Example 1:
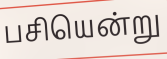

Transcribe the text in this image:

பசியென்று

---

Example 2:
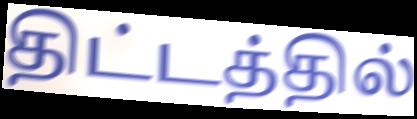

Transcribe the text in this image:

திட்டத்தில்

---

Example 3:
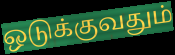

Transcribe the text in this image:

ஒடுக்குவதும்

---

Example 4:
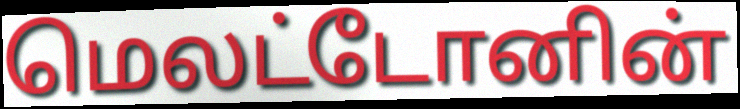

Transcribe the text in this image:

மெலட்டோனின்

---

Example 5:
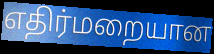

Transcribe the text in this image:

எதிர்மறையான